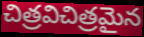
చిత్రవిచిత్రమైన